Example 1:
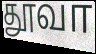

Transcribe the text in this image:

தூவா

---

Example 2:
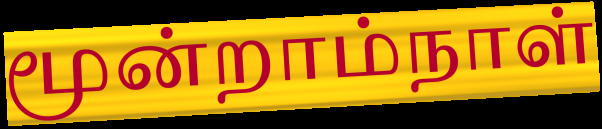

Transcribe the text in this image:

மூன்றாம்நாள்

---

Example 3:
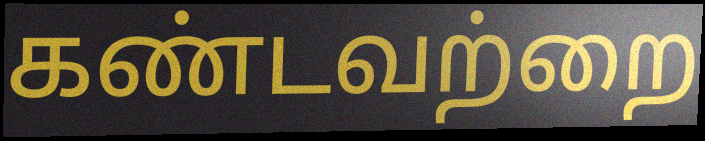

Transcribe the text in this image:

கண்டவற்றை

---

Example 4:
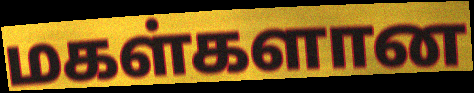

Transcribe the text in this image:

மகள்களான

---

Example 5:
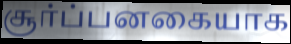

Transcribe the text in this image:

சூர்ப்பனகையாக